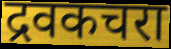
द्रवकचरा